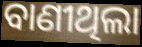
ବାଣୀଥିଲା